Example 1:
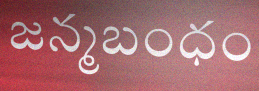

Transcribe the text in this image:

జన్మబంధం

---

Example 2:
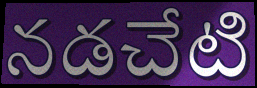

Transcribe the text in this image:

నడచేటి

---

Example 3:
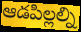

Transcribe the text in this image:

ఆడపిల్లల్ని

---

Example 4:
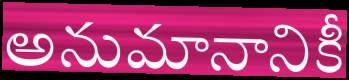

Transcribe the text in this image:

అనుమానానికీ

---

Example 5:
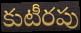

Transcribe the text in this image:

కుటీరపు